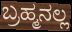
ಬ್ರಹ್ಮನಲ್ಲ